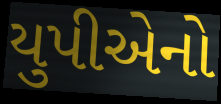
યુપીએનો